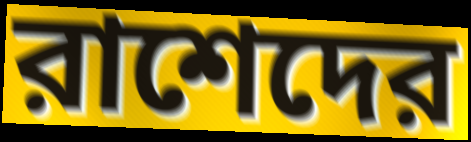
রাশেদের